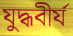
যুদ্ধবীর্য